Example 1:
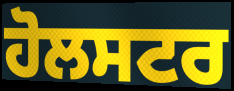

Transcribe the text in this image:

ਹੋਲਸਟਰ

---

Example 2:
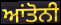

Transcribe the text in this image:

ਆਂਤੋਨੀ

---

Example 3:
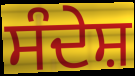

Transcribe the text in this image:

ਸੰਦੇਸ਼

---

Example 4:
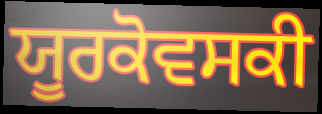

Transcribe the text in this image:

ਯੂਰਕੋਵਸਕੀ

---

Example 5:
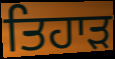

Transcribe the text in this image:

ਤਿਹਾੜ